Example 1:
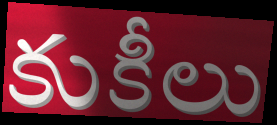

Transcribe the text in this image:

కుకీలు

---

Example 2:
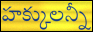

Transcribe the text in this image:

హక్కులన్నీ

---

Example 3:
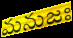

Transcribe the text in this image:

మనుజః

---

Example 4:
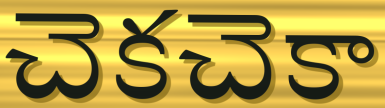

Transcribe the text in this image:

చెకచెకా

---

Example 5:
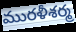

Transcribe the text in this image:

మురళీశర్మ